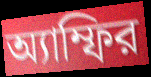
অ্যাম্ফির